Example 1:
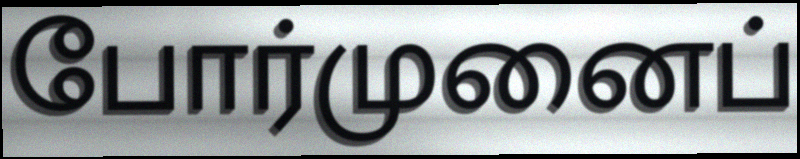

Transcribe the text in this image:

போர்முனைப்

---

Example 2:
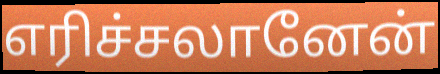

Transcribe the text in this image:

எரிச்சலானேன்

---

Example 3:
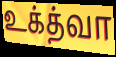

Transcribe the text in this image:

உக்த்வா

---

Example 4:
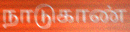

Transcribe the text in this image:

நாடுகாண்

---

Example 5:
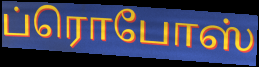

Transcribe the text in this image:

ப்ரொபோஸ்